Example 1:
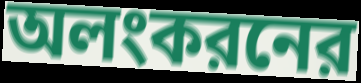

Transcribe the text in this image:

অলংকরনের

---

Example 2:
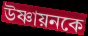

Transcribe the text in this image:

উষ্ণায়নকে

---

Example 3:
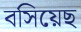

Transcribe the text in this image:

বসিয়েছ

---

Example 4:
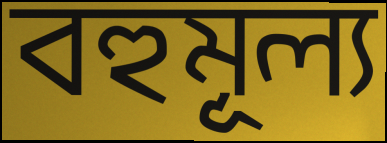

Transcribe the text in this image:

বহুমূল্য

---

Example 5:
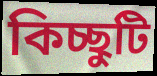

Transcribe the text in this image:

কিচ্ছুটি